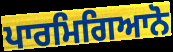
ਪਾਰਮਿਗਿਆਨੋ